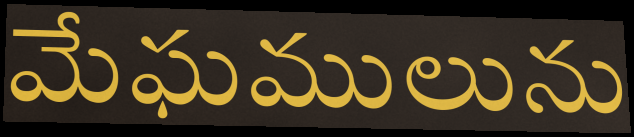
మేఘములును